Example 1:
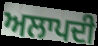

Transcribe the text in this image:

ਅਲਾਪਦੀ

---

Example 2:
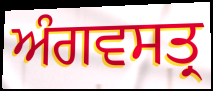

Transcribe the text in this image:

ਅੰਗਵਸਤ੍ਰ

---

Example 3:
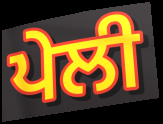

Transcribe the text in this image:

ਪੇਲੀ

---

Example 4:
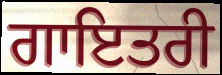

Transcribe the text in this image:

ਗਾਇਤਰੀ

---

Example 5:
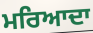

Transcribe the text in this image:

ਮਰਿਆਦਾ